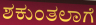
ಶಕುಂತಲಾಗೆ